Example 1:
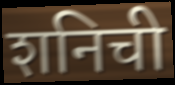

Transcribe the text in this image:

शनिची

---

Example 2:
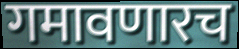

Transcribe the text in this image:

गमावणारच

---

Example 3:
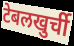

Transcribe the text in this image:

टेबलखुर्ची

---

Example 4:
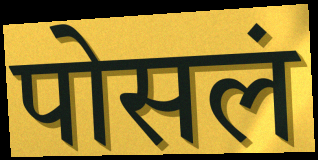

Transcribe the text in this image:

पोसलं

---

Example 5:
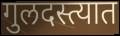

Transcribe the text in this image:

गुलदस्त्यात